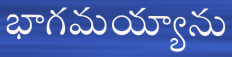
భాగమయ్యాను